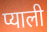
प्याली